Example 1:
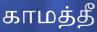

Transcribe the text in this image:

காமத்தீ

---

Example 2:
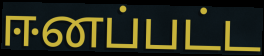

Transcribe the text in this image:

ஈனப்பட்ட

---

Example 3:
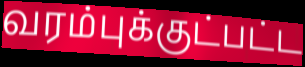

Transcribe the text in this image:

வரம்புக்குட்பட்ட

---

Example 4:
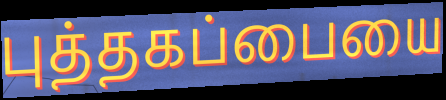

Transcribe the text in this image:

புத்தகப்பையை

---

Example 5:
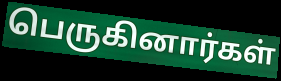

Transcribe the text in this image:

பெருகினார்கள்